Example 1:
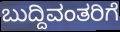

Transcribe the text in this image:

ಬುದ್ದಿವಂತರಿಗೆ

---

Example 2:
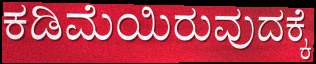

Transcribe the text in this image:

ಕಡಿಮೆಯಿರುವುದಕ್ಕೆ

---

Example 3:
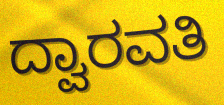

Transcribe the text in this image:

ದ್ವಾರವತಿ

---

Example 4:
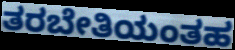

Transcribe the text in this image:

ತರಬೇತಿಯಂತಹ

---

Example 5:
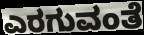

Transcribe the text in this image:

ಎರಗುವಂತೆ